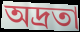
অদ্রতা